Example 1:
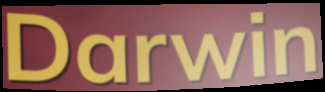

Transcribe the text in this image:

Darwin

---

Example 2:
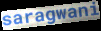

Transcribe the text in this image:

saragwani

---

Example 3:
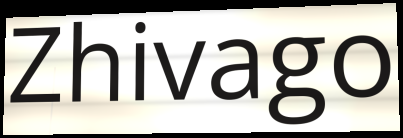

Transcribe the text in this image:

Zhivago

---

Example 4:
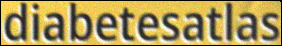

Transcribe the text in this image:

diabetesatlas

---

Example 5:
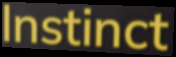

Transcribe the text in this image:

lnstinct